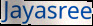
Jayasree